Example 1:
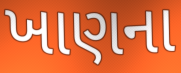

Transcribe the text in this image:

ખાણના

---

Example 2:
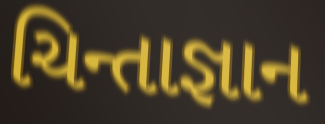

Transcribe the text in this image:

ચિન્તાજ્ઞાન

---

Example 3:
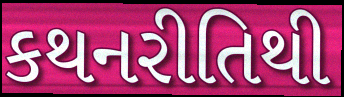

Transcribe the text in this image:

કથનરીતિથી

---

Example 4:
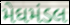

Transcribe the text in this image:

મેઘમંડલ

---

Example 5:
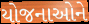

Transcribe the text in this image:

યોજનાઓને